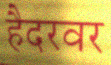
हैदरवर